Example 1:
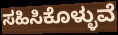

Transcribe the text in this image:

ಸಹಿಸಿಕೊಳ್ಳುವೆ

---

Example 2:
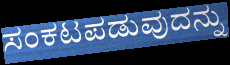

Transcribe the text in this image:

ಸಂಕಟಪಡುವುದನ್ನು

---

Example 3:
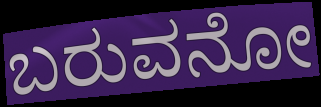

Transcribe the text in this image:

ಬರುವನೋ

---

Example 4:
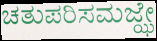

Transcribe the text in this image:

ಚತುಪರಿಸಮಜ್ಝೇ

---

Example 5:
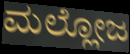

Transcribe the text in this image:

ಮಲ್ಲೋಜ